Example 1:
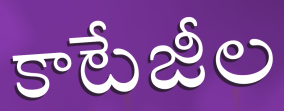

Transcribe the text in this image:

కాటేజీల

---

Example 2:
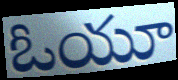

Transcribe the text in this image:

ఓయూ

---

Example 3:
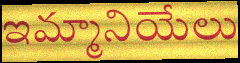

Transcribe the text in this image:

ఇమ్మానియేలు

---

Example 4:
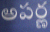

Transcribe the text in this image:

అపర్ణ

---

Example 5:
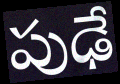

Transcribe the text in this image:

పుఢే